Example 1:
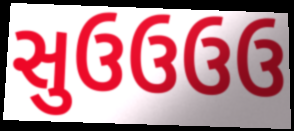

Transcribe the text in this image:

સુઉઉઉઉ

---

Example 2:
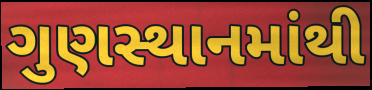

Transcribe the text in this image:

ગુણસ્થાનમાંથી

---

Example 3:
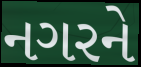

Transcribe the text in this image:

નગરને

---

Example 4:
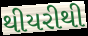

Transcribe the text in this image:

થીયરીથી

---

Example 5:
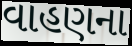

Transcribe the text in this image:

વાહણના